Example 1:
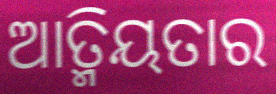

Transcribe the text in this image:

ଆତ୍ମିୟତାର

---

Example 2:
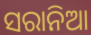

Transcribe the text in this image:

ସରାନିଆ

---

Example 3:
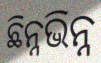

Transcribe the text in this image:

ଛିନ୍ନଭିନ୍ନ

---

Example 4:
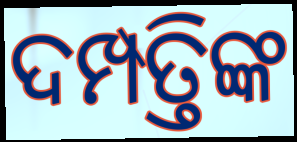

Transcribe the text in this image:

ଦମ୍ପତ୍ତିଙ୍କ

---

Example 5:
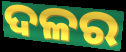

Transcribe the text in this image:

ଦଳର